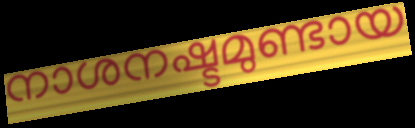
നാശനഷ്ടമുണ്ടായ